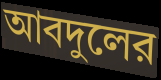
আবদুলের